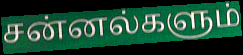
சன்னல்களும்